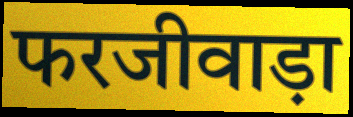
फरजीवाड़ा